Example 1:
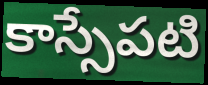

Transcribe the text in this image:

కాస్సేపటి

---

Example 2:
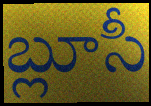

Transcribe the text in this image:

బ్లూసీ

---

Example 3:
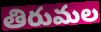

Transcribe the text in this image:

తిరుమల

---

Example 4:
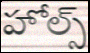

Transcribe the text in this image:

హోల్స్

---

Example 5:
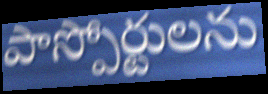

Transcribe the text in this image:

పాస్పోర్టులను